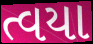
ત્વયા